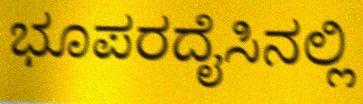
ಭೂಪರದೈಸಿನಲ್ಲಿ